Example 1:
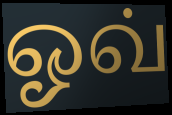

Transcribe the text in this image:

ஓவ்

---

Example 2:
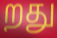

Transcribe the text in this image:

றது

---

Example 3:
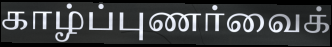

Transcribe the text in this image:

காழ்ப்புணர்வைக்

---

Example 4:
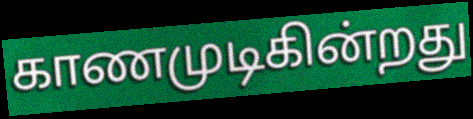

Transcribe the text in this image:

காணமுடிகின்றது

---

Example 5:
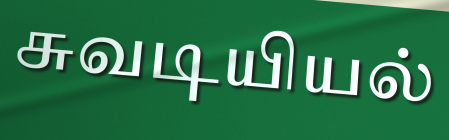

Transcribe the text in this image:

சுவடியியல்